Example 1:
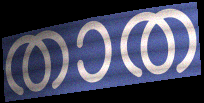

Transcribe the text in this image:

താത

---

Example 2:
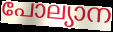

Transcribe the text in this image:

പോല്യാന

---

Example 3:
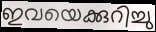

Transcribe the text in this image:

ഇവയെക്കുറിച്ചു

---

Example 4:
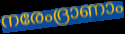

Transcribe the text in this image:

നരേംദ്രാണാം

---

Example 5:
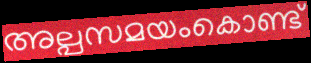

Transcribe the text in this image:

അല്പസമയംകൊണ്ട്